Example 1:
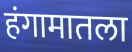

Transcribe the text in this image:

हंगामातला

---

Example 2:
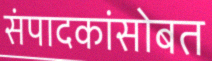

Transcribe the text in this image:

संपादकांसोबत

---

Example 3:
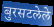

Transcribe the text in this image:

बुरसटलेले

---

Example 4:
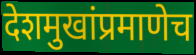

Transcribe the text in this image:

देशमुखांप्रमाणेच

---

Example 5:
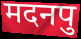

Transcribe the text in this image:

मदनपु